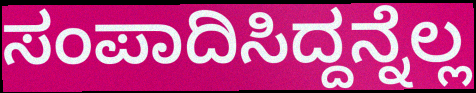
ಸಂಪಾದಿಸಿದ್ದನ್ನೆಲ್ಲ